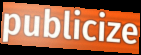
publicize